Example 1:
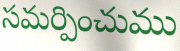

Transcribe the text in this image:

సమర్పించుము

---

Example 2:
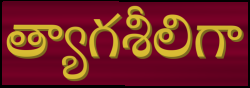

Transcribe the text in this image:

త్యాగశీలిగా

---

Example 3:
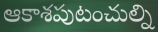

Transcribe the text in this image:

ఆకాశపుటంచుల్ని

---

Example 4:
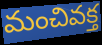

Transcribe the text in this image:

మంచివక్త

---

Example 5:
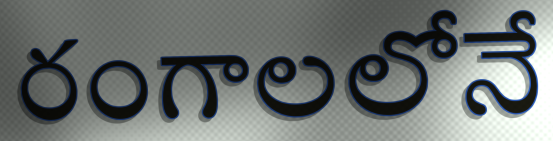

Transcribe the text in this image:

రంగాలలోనే